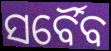
ସର୍ବୈବ